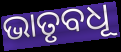
ଭାତୃବଧୂ